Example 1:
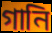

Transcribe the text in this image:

গানি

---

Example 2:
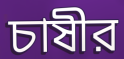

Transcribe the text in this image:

চাষীর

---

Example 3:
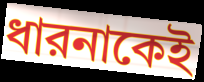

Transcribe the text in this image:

ধারনাকেই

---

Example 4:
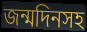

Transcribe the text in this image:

জন্মদিনসহ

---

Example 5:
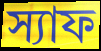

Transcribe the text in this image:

স্যাফ